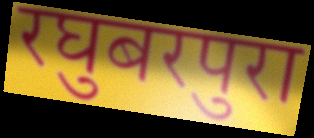
रघुबरपुरा